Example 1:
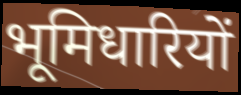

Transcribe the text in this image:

भूमिधारियों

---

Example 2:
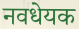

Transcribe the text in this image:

नवधेयक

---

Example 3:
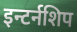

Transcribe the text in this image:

इन्टर्नशिप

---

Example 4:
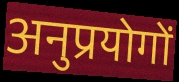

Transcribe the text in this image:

अनुप्रयोगों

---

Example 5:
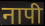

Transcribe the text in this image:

नापी